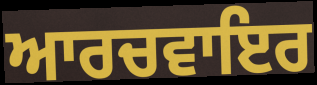
ਆਰਚਵਾਇਰ